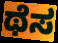
ಥೆಸ